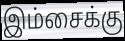
இம்சைக்கு